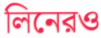
লিনেরও